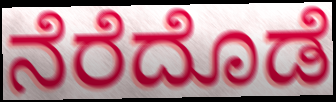
ನೆರೆದೊಡೆ